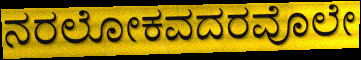
ನರಲೋಕವದರವೊಲೇ